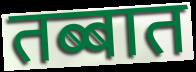
तब्बात